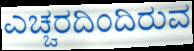
ಎಚ್ಚರದಿಂದಿರುವ